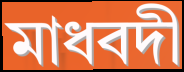
মাধবদী